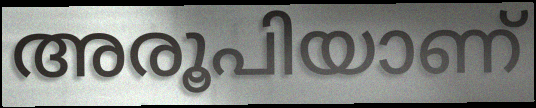
അരൂപിയാണ്